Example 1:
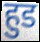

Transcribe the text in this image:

हुड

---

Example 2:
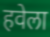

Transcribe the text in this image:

हवेला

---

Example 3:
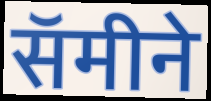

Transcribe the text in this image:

सॅमीने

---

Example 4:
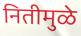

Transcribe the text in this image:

नितीमुळे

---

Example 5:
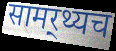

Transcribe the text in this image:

सामर्थ्यच